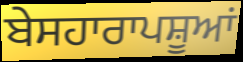
ਬੇਸਹਾਰਾਪਸ਼ੂਆਂ